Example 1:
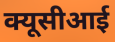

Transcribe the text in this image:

क्यूसीआई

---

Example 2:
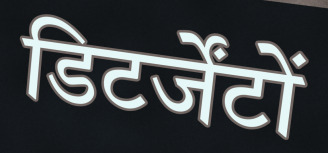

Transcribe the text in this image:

डिटर्जेंटों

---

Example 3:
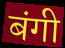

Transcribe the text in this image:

बंगी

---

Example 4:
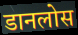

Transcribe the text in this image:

डानलोस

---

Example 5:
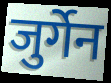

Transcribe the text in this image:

जुर्गेन